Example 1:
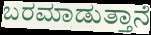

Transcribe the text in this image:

ಬರಮಾಡುತ್ತಾನೆ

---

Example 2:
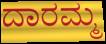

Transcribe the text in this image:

ದಾರಮ್ಮ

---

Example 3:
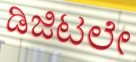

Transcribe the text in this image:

ಡಿಜಿಟಲೇ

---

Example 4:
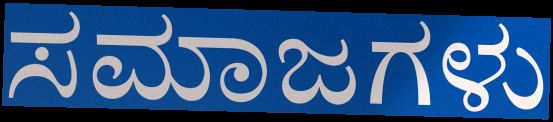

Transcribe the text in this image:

ಸಮಾಜಗಳು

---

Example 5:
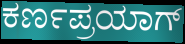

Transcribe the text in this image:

ಕರ್ಣಪ್ರಯಾಗ್